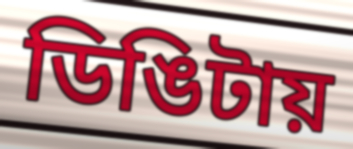
ডিঙিটায়